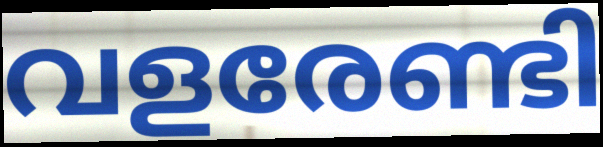
വളരേണ്ടി